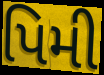
પિમી